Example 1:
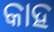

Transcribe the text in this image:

କାହ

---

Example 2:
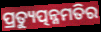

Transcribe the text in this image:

ପ୍ରତ୍ୟୁତ୍ପନ୍ନମତିର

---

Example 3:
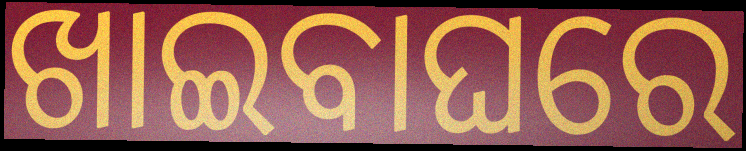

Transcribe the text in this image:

ଖାଇବାଘରେ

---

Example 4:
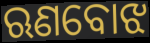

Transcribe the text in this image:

ଋଣବୋଝ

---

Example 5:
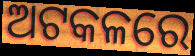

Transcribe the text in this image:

ଅଟକଳରେ